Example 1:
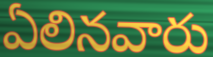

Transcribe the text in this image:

ఏలినవారు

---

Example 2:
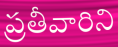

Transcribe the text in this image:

ప్రతీవారిని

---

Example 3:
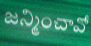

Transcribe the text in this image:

జన్మించావో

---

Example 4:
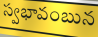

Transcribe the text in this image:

స్వభావంబున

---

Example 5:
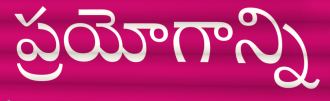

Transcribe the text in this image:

ప్రయోగాన్ని